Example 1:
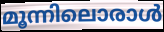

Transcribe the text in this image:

മൂന്നിലൊരാൾ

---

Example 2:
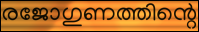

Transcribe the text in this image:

രജോഗുണത്തിന്റെ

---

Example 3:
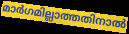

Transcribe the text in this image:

മാർഗമില്ലാത്തതിനാൽ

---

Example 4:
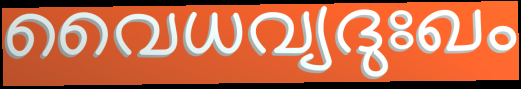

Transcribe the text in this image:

വൈധവ്യദുഃഖം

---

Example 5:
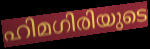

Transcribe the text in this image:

ഹിമഗിരിയുടെ